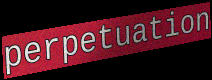
perpetuation